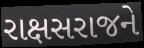
રાક્ષસરાજને